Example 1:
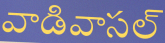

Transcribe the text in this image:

వాడివాసల్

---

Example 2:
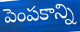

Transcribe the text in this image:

పెంపకాన్ని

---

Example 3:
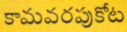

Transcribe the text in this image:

కామవరపుకోట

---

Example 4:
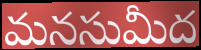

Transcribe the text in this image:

మనసుమీద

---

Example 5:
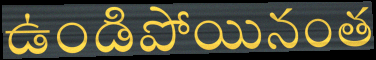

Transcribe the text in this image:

ఉండిపోయినంత